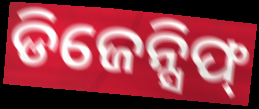
ଡିଜେନ୍ସିଫ୍